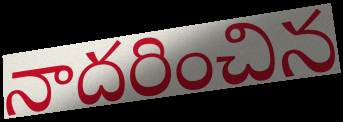
నాదరించిన